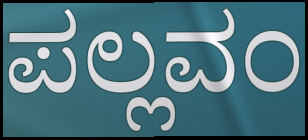
ಪಲ್ಲವಂ